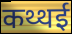
कथ्थई